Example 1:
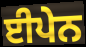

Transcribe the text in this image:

ਈਪੇਨ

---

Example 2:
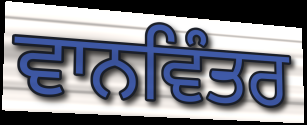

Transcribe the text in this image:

ਵਾਨਵਿੰਤਰ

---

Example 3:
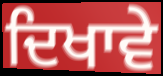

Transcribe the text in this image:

ਦਿਖਾਵੇ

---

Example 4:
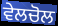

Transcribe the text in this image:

ਵੇਲਚੋਲ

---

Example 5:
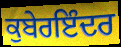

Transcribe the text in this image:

ਕੁਬੇਰਇੰਦਰ